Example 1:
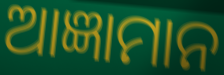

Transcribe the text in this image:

ଆଜ୍ଞାମାନ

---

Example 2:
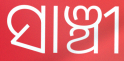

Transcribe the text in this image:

ସାଞ୍ଚୀ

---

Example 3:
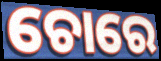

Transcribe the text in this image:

ଚୋରେ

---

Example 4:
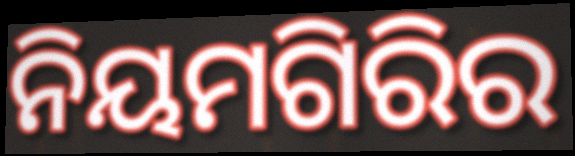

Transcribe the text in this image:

ନିୟମଗିରିର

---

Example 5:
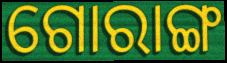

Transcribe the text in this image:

ଗୋରାଙ୍ଗ